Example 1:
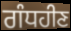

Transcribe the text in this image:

ਗੰਧਹੀਣ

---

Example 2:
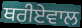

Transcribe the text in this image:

ਥਰੀਏਵਾਲ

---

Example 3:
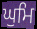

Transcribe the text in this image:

ਘੁਮਿ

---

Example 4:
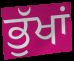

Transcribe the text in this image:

ਭੁੱਖਾਂ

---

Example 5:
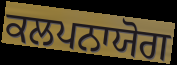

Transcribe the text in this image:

ਕਲਪਨਾਯੋਗ